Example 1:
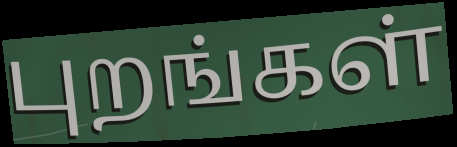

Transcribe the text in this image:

புறங்கள்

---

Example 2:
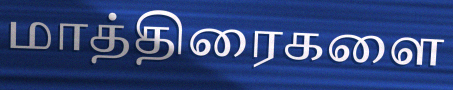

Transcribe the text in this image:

மாத்திரைகளை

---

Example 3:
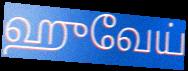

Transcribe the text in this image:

ஹுவேய்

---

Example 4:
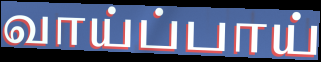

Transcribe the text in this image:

வாய்ப்பாய்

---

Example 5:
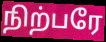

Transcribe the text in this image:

நிற்பரே